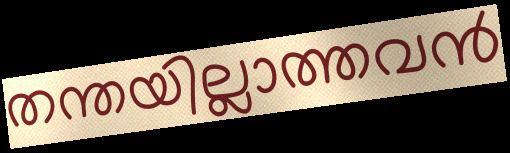
തന്തയില്ലാത്തവൻ